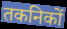
तकनिकों